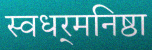
स्वधर्मनिष्ठा